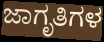
ಜಾಗೃತಿಗಳ